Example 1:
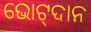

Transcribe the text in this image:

ଭୋଟ୍‌ଦାନ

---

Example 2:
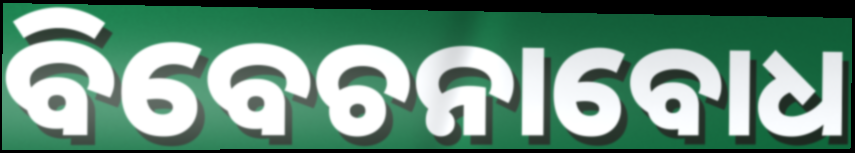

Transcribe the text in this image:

ବିବେଚନାବୋଧ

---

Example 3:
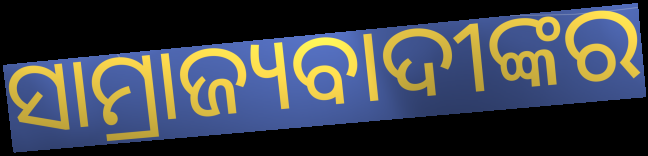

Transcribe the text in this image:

ସାମ୍ରାଜ୍ୟବାଦୀଙ୍କର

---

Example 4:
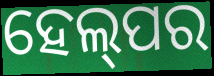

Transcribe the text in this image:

ହେଲ୍‌ପର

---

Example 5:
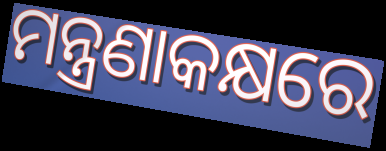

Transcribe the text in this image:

ମନ୍ତ୍ରଣାକକ୍ଷରେ